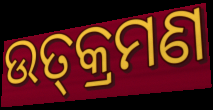
ଉତ୍‍କ୍ରମଣ